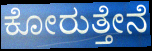
ಕೋರುತ್ತೇನೆ